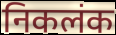
निकलंक